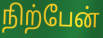
நிற்பேன்